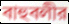
বাহুবলীর